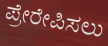
ಪ್ರೇರೇಪಿಸಲು